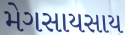
મેગસાયસાય